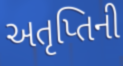
અતૃપ્તિની